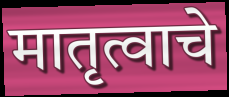
मातृत्वाचे